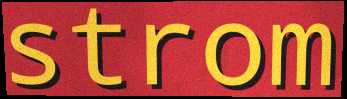
strom